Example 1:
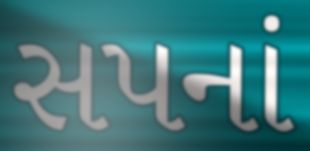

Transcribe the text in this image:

સપનાં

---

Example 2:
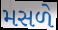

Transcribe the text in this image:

મસળે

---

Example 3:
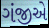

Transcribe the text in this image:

ગંજીએ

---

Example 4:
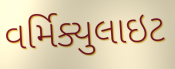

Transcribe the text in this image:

વર્મિક્યુલાઇટ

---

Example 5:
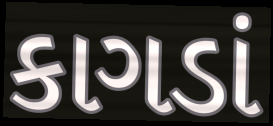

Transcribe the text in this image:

કાગડાં